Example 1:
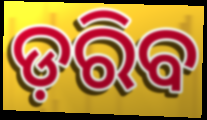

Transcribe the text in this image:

ଡ଼ରିବ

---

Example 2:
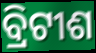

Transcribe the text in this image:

ବ୍ରିଟୀଶ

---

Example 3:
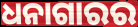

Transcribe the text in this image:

ଧନାଗାରର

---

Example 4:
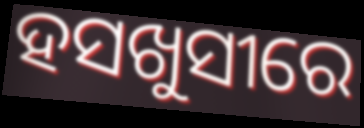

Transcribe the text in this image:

ହସଖୁସୀରେ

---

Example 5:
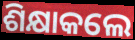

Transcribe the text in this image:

ଶିକ୍ଷାକଲେ